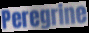
Peregrine